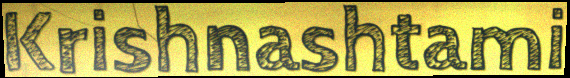
Krishnashtami